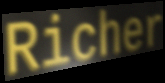
Richer